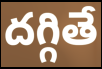
దగ్గితే